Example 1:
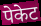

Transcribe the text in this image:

पेकेट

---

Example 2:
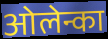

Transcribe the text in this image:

ओलेन्का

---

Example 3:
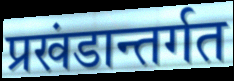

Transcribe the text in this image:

प्रखंडान्तर्गत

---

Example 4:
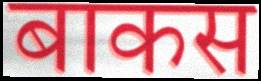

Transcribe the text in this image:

बाकस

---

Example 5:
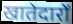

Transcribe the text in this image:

खातेदारों